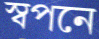
স্বপনে